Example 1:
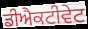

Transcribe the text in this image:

ਡੀਐਕਟੀਵੇਟ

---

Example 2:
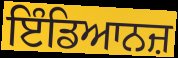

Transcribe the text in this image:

ਇੰਡਿਆਨਜ਼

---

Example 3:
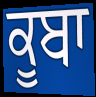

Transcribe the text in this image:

ਕੂਬਾ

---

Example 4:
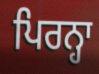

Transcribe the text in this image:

ਪਿਰਨ੍ਹਾ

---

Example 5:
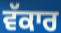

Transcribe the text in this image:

ਵੱਕਾਰ